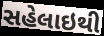
સહેલાઇથી